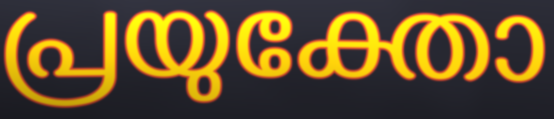
പ്രയുക്തോ